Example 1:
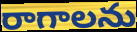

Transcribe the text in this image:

రాగాలను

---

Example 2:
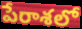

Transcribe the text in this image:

పేరాశలో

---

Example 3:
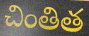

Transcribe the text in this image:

చింతిత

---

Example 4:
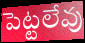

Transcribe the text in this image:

పెట్టలేవు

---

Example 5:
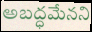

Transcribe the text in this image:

అబద్ధమేనని